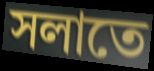
সলাতে